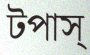
টপাস্